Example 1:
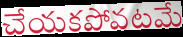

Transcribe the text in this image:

చేయకపోవటమే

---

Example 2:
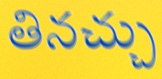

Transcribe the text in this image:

తినచ్చు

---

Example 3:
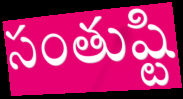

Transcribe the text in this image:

సంతుష్టి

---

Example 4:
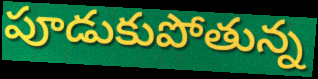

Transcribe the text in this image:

పూడుకుపోతున్న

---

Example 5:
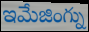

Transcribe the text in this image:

ఇమేజింగ్ను